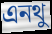
এনথু